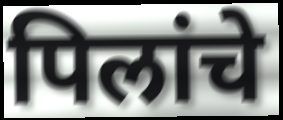
पिलांचे